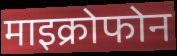
माइक्रोफोन